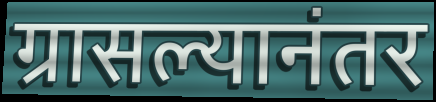
ग्रासल्यानंतर